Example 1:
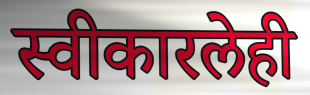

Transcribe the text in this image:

स्वीकारलेही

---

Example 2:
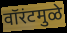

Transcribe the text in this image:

वॉरंटमुळे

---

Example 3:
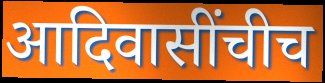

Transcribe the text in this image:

आदिवासींचीच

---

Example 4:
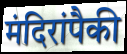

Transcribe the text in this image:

मंदिरांपैकी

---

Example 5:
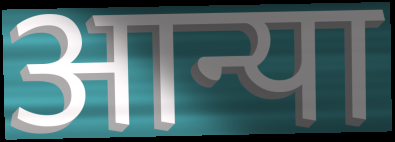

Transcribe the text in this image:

आन्या